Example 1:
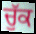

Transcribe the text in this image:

ਚੁੱਕ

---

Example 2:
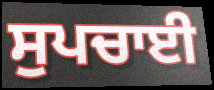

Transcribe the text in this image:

ਸੁਪਚਾਈ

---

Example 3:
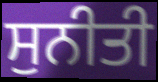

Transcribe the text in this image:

ਸੁਨੀਤੀ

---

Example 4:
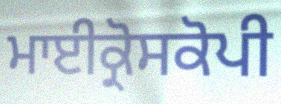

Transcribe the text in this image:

ਮਾਈਕ੍ਰੋਸਕੋਪੀ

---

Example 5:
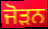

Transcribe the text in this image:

ਜੋੜਨ